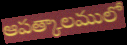
ఆపత్కాలములో